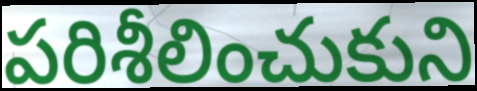
పరిశీలించుకుని